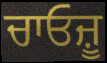
ਚਾਓਜ਼ੂ